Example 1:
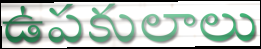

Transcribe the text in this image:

ఉపకులాలు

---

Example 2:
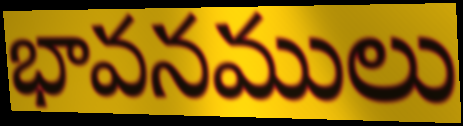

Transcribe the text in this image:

భావనములు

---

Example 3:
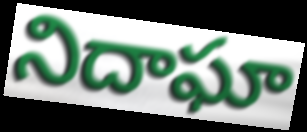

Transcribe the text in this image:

నిదాఘా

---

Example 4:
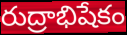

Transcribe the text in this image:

రుద్రాభిషేకం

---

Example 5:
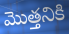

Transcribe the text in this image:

మొత్తనికి